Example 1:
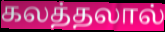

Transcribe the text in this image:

கலத்தலால்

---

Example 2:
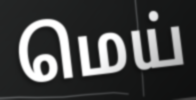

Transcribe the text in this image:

மெய்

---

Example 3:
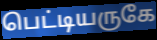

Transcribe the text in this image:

பெட்டியருகே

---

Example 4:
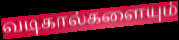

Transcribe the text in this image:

வடிகால்களையும்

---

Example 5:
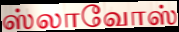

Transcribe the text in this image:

ஸ்லாவோஸ்